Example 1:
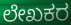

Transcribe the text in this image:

ಲೇಖಕರ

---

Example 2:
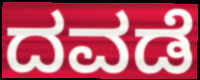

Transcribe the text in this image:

ದವಡೆ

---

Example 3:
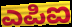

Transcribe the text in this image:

ಎಪಿಐ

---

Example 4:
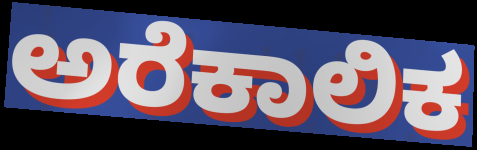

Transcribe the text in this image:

ಅರೆಕಾಲಿಕ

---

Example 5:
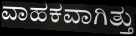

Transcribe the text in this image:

ವಾಹಕವಾಗಿತ್ತು